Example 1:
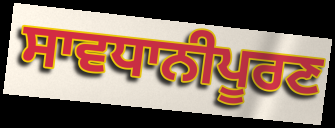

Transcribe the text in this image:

ਸਾਵਧਾਨੀਪੂਰਣ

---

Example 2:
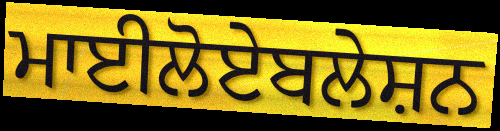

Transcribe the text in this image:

ਮਾਈਲੋਏਬਲੇਸ਼ਨ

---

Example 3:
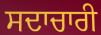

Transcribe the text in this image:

ਸਦਾਚਾਰੀ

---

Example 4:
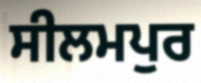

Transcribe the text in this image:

ਸੀਲਮਪੁਰ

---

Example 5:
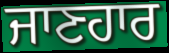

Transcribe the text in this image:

ਜਾਣਹਾਰ